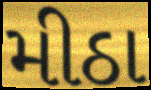
મીઠા